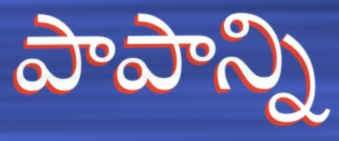
పాపాన్ని